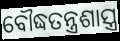
ବୌଦ୍ଧତନ୍ତ୍ରଶାସ୍ତ୍ର